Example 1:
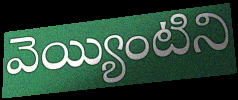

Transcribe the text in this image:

వెయ్యింటిని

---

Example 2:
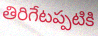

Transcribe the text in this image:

తిరిగేటప్పటికి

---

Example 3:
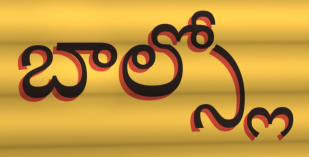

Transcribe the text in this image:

బాల్స్లో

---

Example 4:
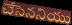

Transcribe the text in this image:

చేసెననియు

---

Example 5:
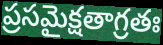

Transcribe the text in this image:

ప్రసమైక్షతాగ్రతః